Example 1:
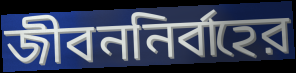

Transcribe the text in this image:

জীবননির্বাহের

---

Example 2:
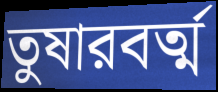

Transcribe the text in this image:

তুষারবর্ত্ম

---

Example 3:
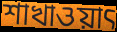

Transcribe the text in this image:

শাখাওয়াৎ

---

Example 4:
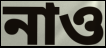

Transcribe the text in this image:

নাও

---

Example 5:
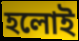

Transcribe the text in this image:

হলোই